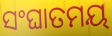
ସଂଘାତମୟ